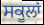
ਸਕੂਲਾਂ